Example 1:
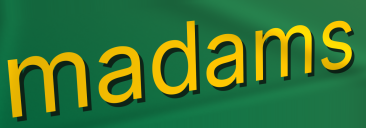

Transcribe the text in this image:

madams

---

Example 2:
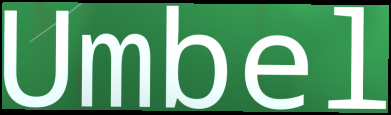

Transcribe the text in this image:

Umbel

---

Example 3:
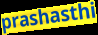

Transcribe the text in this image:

prashasthi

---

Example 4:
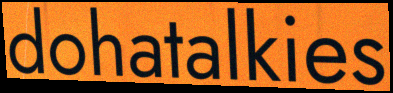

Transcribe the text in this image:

dohatalkies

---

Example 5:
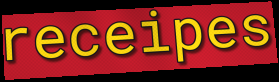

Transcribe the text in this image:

receipes